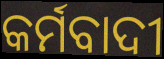
କର୍ମବାଦୀ